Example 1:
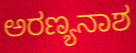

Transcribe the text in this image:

ಅರಣ್ಯನಾಶ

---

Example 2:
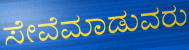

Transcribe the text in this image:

ಸೇವೆಮಾಡುವರು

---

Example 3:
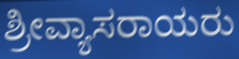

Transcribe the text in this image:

ಶ್ರೀವ್ಯಾಸರಾಯರು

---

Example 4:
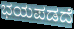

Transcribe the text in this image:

ಭಯಪಡದೆ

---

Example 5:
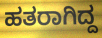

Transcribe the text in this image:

ಹತರಾಗಿದ್ದ